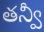
తన్వీ